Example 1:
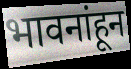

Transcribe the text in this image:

भावनांहून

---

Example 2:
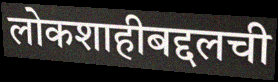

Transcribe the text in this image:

लोकशाहीबद्दलची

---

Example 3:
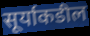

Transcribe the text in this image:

सूर्याकडील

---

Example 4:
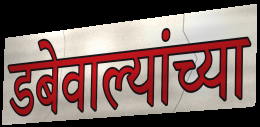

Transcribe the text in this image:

डबेवाल्यांच्या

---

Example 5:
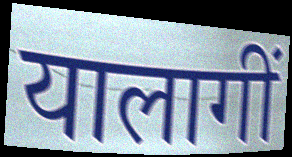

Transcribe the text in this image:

यालागीं